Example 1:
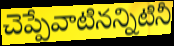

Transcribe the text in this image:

చెప్పేవాటినన్నిటినీ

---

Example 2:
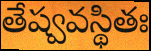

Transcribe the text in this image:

తేష్వవస్థితః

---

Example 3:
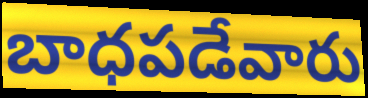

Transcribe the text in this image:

బాధపడేవారు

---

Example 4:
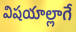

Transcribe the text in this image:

విషయాల్లాగే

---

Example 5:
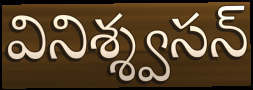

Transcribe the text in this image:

వినిశ్శ్వసన్